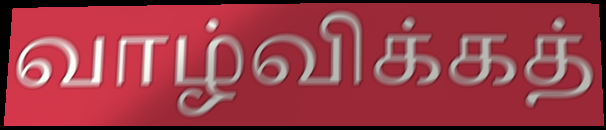
வாழ்விக்கத்